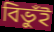
বিভুঁই